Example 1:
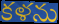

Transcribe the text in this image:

కళను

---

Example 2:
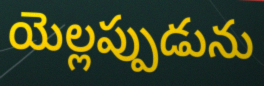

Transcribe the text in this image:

యెల్లప్పుడును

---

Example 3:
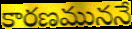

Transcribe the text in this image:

కారణముననే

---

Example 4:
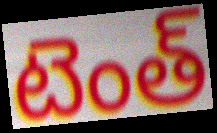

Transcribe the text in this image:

టెంత్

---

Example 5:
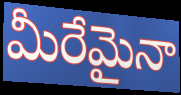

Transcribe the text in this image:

మీరేమైనా